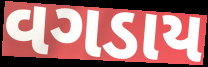
વગડાય